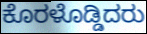
ಕೊರಳೊಡ್ಡಿದರು